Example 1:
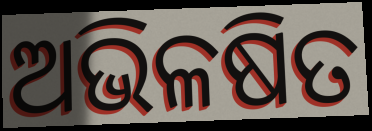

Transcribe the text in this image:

ଅଭିଳଷିତ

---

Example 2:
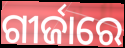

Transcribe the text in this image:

ଗୀର୍ଜାରେ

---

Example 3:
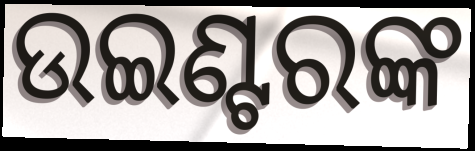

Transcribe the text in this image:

ଉଇଣ୍ଟରଙ୍କ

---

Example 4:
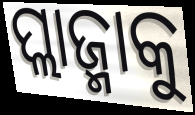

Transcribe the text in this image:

ପ୍ଲାଜ୍ମାକୁ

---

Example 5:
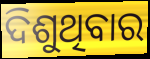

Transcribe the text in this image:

ଦିଶୁଥିବାର